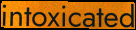
intoxicated